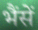
भैंसें